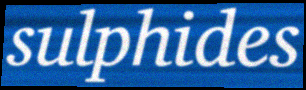
sulphides